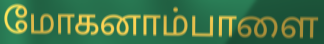
மோகனாம்பாளை